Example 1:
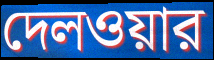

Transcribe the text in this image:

দেলওয়ার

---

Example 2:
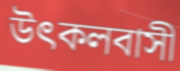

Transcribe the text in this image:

উৎকলবাসী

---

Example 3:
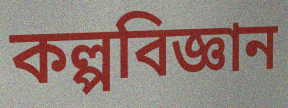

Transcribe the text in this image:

কল্পবিজ্ঞান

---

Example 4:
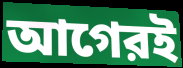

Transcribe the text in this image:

আগেরই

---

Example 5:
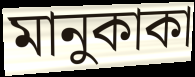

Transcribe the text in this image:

মানুকাকা